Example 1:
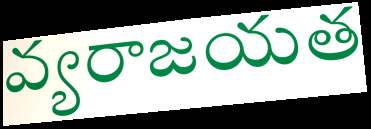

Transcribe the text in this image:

వ్యరాజయత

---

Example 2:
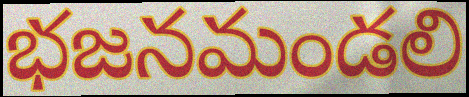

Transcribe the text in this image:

భజనమండలి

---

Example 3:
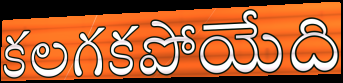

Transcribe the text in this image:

కలగకపోయేది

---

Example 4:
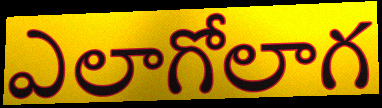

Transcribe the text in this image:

ఎలాగోలాగ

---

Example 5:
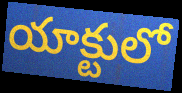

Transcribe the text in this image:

యాక్టులో